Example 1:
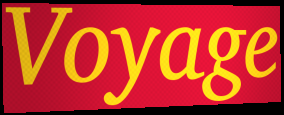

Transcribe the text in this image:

Voyage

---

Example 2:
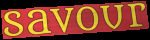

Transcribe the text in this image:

savour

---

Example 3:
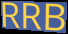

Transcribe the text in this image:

RRB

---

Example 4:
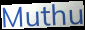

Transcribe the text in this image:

Muthu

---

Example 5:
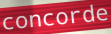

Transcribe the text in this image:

concorde